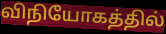
விநியோகத்தில்